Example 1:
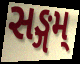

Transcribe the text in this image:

સઙ્ગમ્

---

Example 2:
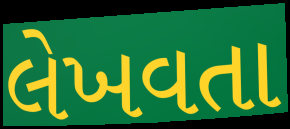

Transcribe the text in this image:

લેખવતા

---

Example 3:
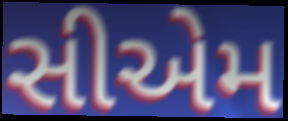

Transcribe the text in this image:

સીએમ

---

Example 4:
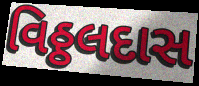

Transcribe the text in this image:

વિઠ્ઠલદાસ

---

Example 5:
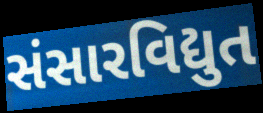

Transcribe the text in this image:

સંસારવિદ્યુત